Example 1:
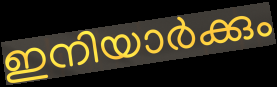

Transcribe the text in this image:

ഇനിയാർക്കും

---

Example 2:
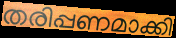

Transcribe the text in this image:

തരിപ്പണമാക്കി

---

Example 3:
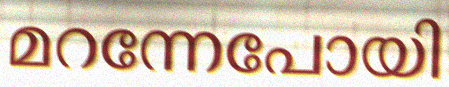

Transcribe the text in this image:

മറന്നേപോയി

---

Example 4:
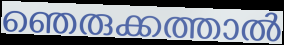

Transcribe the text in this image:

ഞെരുക്കത്താൽ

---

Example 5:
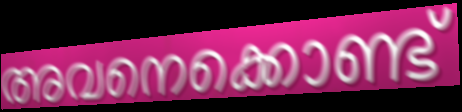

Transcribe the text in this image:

അവനെക്കൊണ്ട്